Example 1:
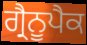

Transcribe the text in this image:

ਗ੍ਰੈਨੂਪੈਕ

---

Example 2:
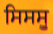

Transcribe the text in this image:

ਸਿਸਸੂ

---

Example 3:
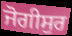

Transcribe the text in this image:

ਜੋਗੀਸੁਰ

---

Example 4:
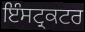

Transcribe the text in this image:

ਇੰਸਟ੍ਰਕਟਰ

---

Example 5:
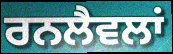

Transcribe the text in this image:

ਰਨਲੈਵਲਾਂ